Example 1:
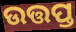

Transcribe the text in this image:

ଉତ୍ତପ୍ତ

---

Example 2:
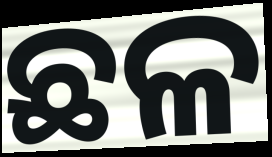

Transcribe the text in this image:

ଛଳ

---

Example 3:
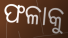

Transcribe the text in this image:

ଫଳାକୁ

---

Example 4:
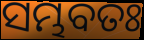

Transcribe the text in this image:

ସମ୍ଭବତଃ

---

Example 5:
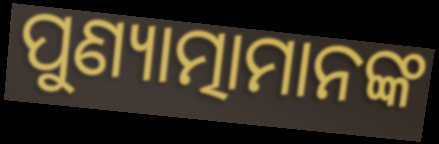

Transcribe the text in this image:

ପୁଣ୍ୟାତ୍ମାମାନଙ୍କ